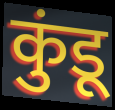
कुंडू